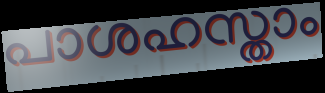
പാശഹസ്താം